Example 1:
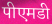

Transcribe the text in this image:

पीएमडी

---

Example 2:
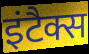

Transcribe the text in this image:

इंटैक्स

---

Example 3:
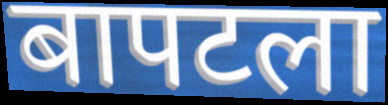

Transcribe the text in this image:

बापटला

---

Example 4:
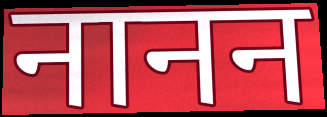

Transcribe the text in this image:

नानन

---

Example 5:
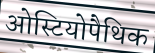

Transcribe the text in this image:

ओस्टियोपैथिक